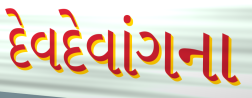
દેવદેવાંગના